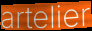
artelier